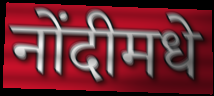
नोंदीमधे